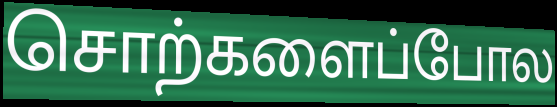
சொற்களைப்போல